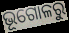
ଭୂଗୋଳରୁ